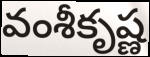
వంశీకృష్ణ